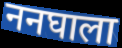
ननघाला